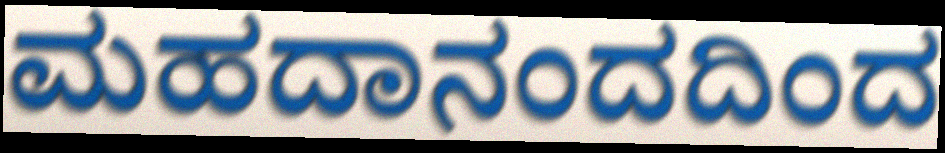
ಮಹದಾನಂದದಿಂದ